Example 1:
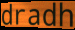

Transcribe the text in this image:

dradh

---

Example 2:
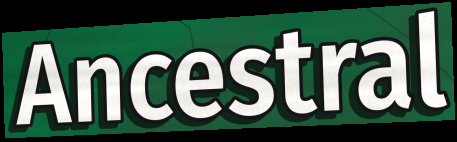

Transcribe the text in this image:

Ancestral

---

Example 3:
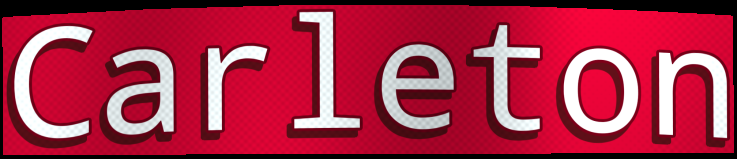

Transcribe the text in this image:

Carleton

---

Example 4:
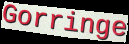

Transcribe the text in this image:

Gorringe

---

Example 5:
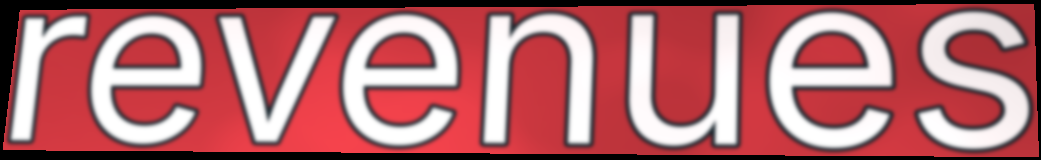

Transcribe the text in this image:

revenues